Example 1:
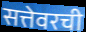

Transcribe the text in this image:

सत्तेवरची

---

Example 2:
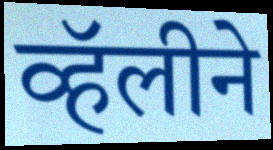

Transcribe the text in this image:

व्हॅलीने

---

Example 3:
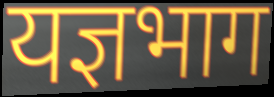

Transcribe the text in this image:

यज्ञभाग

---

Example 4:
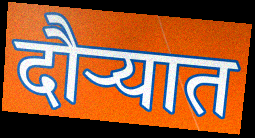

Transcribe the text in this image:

दौऱ्यात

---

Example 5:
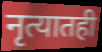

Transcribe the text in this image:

नृत्यातही